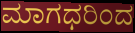
ಮಾಗಧರಿಂದ